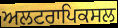
ਅਲਟਰਾਪਿਕਸਲ